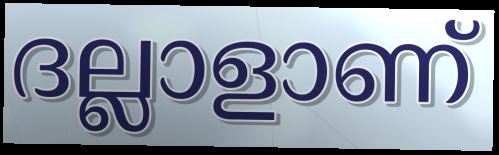
ദല്ലാളാണ്